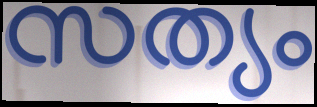
സത്യം